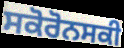
ਸਕੋਰੋਨਸਕੀ